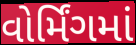
વોર્મિંગમાં